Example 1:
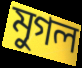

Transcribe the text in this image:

মুগল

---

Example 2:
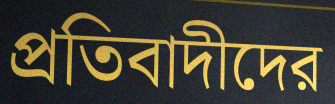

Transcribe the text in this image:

প্রতিবাদীদের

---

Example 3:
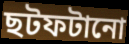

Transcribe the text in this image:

ছটফটানো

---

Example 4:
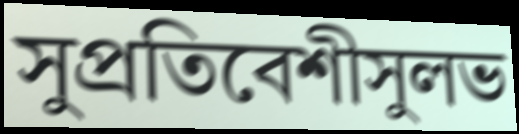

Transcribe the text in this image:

সুপ্রতিবেশীসুলভ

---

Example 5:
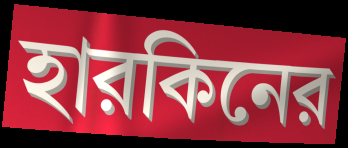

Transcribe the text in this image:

হারকিনের